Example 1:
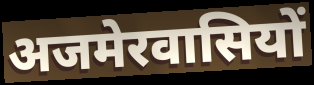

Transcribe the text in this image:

अजमेरवासियों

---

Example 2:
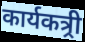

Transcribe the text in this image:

कार्यकत्र्री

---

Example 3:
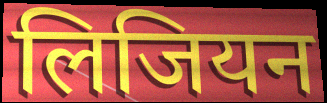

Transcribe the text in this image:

लिजियन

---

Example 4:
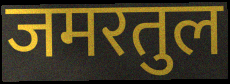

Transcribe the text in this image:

जमरतुल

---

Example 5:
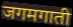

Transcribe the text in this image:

जगमगाती